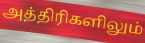
அத்திரிகளிலும்